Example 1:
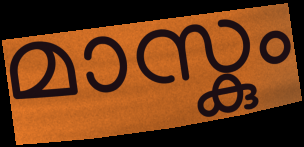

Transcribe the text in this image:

മാസ്കും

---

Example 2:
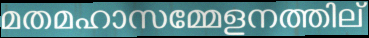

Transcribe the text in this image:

മതമഹാസമ്മേളനത്തില്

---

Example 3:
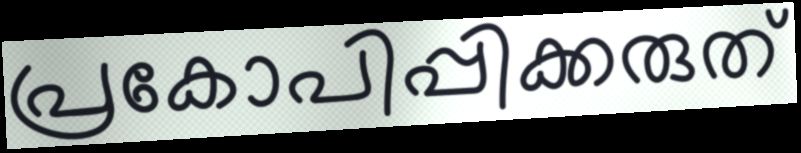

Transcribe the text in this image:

പ്രകോപിപ്പിക്കരുത്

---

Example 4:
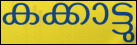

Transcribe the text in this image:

കക്കാട്ടു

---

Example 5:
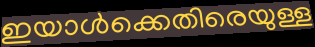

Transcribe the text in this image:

ഇയാൾക്കെതിരെയുള്ള